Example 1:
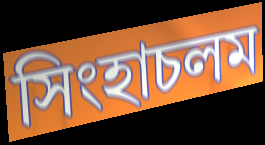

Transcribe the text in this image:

সিংহাচলম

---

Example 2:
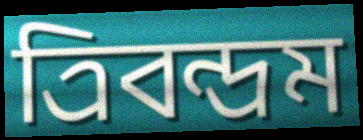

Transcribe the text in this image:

ত্রিবন্দ্রম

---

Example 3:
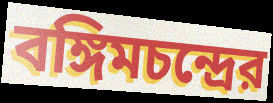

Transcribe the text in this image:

বঙ্গিমচন্দ্রের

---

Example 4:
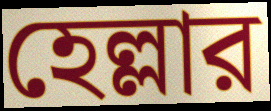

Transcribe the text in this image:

হেল্লার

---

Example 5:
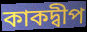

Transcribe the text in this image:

কাকদ্বীপ